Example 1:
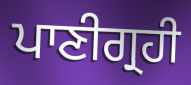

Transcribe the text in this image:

ਪਾਣੀਗ੍ਰਹੀ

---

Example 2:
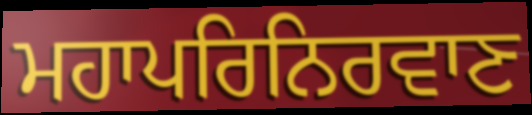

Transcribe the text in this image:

ਮਹਾਪਰਿਨਿਰਵਾਣ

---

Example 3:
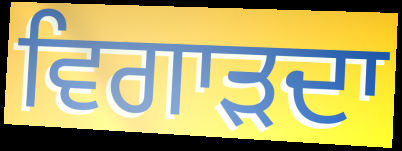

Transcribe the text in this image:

ਵਿਗਾੜਦਾ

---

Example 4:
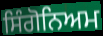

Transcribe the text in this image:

ਸਿੰਗੋਨਿਅਮ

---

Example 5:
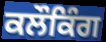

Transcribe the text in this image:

ਕਲੌਕਿੰਗ